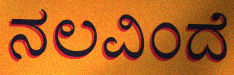
ನಲವಿಂದೆ